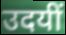
उदयीं